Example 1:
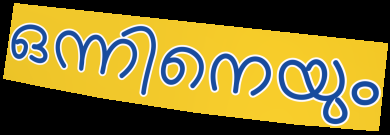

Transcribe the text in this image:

ഒന്നിനെയും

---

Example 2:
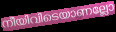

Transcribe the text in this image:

നീയിവിടെയാണല്ലോ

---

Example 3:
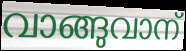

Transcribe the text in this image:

വാങ്ങുവാന്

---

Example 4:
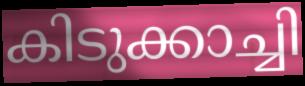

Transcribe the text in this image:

കിടുക്കാച്ചി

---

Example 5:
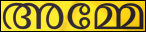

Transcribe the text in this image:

അമ്മേ